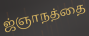
ஜ்ஞாநத்தை